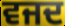
ਵਜਦ